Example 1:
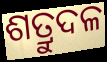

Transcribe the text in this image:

ଶତ୍ରୁଦଳ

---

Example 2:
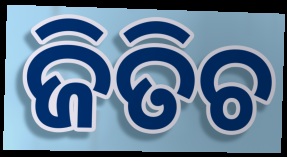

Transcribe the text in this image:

ଜିତିଚ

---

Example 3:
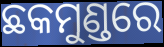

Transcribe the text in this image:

ଛକମୁଣ୍ଡରେ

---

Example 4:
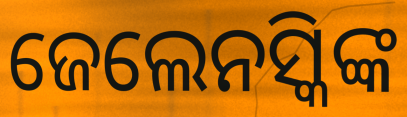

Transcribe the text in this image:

ଜେଲେନସ୍କିଙ୍କ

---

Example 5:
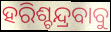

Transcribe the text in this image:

ହରିଶ୍ଚନ୍ଦ୍ରବାବୁ